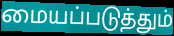
மையப்படுத்தும்